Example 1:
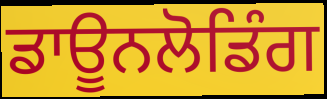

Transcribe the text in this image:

ਡਾਊਨਲੋਡਿੰਗ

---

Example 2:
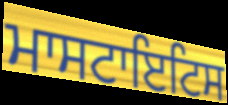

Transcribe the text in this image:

ਮਾਸਟਾਇਟਿਸ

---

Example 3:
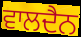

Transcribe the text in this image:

ਵਾਲਦੈਨ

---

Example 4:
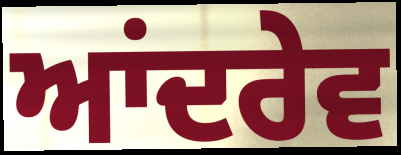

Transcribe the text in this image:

ਆਂਦਰੇਵ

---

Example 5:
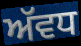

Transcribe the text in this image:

ਅੱਵਧ